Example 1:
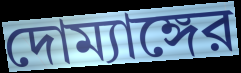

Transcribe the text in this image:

দোম্যাঙ্গের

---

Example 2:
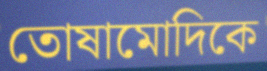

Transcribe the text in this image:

তোষামোদিকে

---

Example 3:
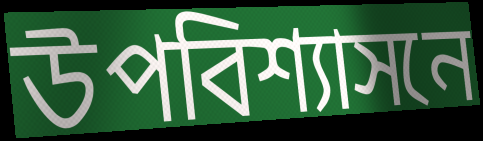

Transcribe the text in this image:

উপবিশ্যাসনে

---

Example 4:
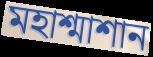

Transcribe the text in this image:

মহাশ্মাশান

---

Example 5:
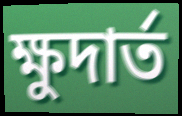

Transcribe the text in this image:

ক্ষুদার্ত